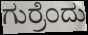
ಗುರ್ರೆಂದು